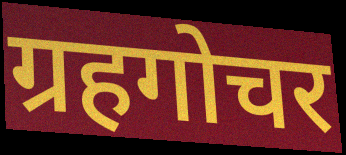
ग्रहगोचर